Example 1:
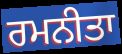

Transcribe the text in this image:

ਰਮਨੀਤਾ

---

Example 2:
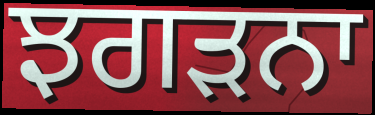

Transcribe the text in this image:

ਝਗੜਨਾ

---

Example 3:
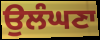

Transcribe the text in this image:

ਉਲੰਘਣਾ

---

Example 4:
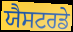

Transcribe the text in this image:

ਯੈਸਟਰਡੇ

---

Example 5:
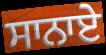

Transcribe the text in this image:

ਸਾਨਾਏ